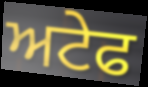
ਅਟੇਫ